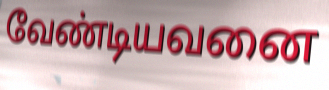
வேண்டியவனை